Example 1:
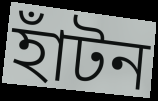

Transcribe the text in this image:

হাঁটন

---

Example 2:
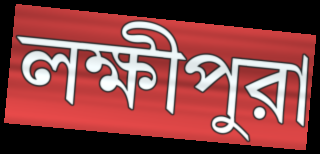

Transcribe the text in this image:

লক্ষীপুরা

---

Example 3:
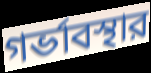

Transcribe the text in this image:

গর্ভাবস্থার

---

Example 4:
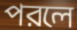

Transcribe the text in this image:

পরলে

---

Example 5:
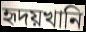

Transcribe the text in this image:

হৃদয়খানি